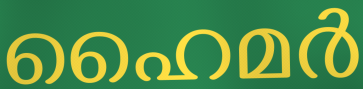
ഹൈമർ